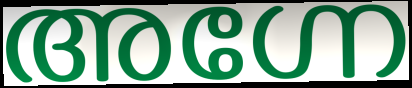
അഗ്നേ